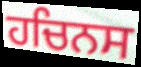
ਹਚਿਨਸ